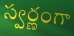
స్వర్ణంగా